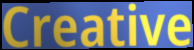
Creative